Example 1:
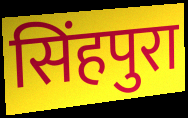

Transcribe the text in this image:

सिंहपुरा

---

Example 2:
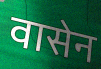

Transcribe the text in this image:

वासेन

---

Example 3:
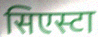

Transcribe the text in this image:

सिएस्टा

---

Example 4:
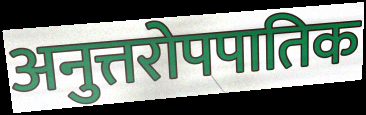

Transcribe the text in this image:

अनुत्तरोपपातिक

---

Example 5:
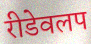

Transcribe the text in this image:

रीडेवलप